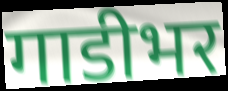
गाडीभर